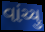
વાંચ્યુ